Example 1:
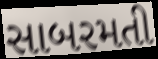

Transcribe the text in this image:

સાબરમતી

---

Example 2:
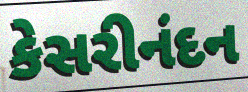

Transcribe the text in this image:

કેસરીનંદન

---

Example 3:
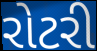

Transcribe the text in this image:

રોટરી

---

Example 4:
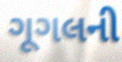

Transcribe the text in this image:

ગૂગલની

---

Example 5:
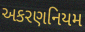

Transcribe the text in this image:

અકરણનિયમ